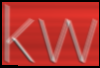
kw